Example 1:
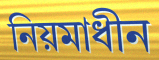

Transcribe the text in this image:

নিয়মাধীন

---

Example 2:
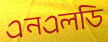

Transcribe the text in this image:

এনএলডি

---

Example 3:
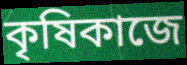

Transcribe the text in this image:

কৃষিকাজে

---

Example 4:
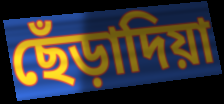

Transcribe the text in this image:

ছেঁড়াদিয়া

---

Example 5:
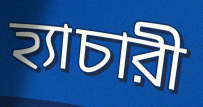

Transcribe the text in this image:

হ্যাচারী